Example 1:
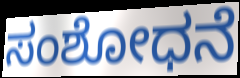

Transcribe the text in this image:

ಸಂಶೋಧನೆ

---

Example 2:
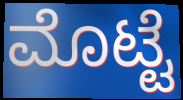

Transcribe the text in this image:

ಮೊಟ್ಟೆ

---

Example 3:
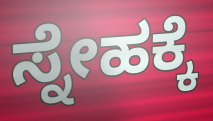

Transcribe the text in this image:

ಸ್ನೇಹಕ್ಕೆ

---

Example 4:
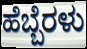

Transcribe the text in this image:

ಹೆಬ್ಬೆರಳು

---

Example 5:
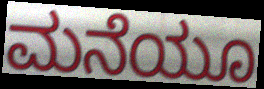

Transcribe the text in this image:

ಮನೆಯೂ